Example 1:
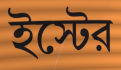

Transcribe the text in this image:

ইস্টের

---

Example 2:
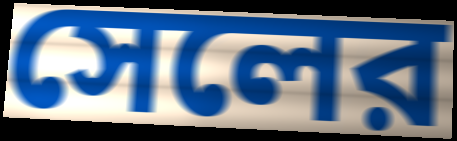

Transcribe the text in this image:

সেলের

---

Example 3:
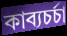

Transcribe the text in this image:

কাব্যচর্চা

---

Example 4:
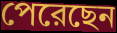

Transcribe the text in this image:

পেরেছেন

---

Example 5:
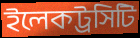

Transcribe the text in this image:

ইলেকট্রসিটি